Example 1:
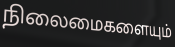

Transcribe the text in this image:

நிலைமைகளையும்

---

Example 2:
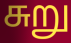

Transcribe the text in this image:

சுறு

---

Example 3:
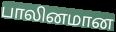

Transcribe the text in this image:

பாலினமான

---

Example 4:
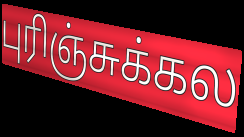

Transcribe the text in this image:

புரிஞ்சுக்கல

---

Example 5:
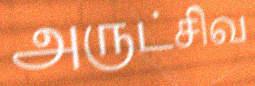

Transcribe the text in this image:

அருட்சிவ